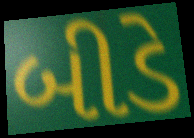
બીડે